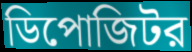
ডিপোজিটর